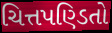
ચિત્તપણ્ડિતો